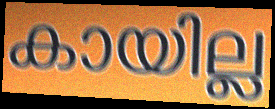
കായില്ല